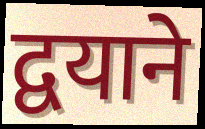
द्वयाने